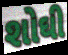
શોઘી